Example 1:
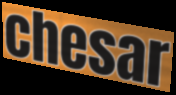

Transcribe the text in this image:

chesar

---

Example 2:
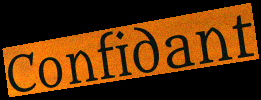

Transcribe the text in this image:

Confidant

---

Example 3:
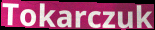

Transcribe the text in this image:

Tokarczuk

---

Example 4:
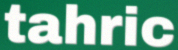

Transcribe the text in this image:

tahric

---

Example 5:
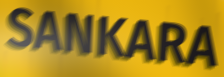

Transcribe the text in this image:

SANKARA